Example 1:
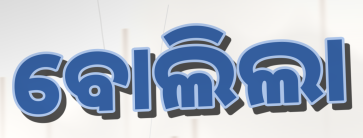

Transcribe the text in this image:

ବୋଲିଲା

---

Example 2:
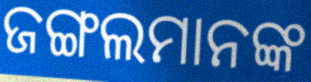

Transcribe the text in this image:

ଜଙ୍ଗଲମାନଙ୍କ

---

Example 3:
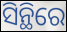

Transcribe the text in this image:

ସିନ୍ଥିରେ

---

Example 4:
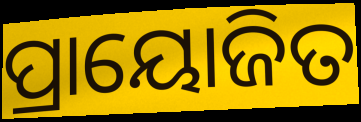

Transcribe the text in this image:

ପ୍ରାୟୋଜିତ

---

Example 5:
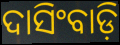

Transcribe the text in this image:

ଦାସିଂବାଡ଼ି